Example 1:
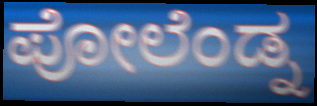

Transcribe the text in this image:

ಪೋಲೆಂಡ್ನ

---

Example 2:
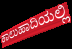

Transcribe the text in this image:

ಕಾಲುಹಾದಿಯಲ್ಲಿ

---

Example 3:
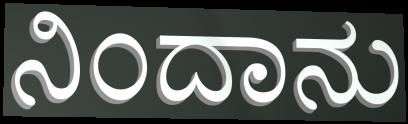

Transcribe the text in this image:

ನಿಂದಾನು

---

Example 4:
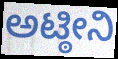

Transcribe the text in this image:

ಅಟ್ಠೀನಿ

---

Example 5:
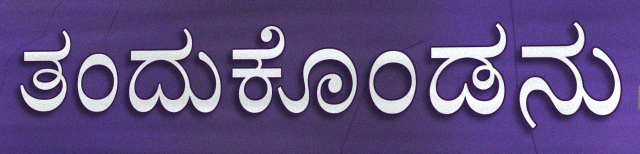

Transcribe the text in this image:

ತಂದುಕೊಂಡನು